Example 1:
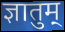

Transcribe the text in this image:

ज्ञातुम्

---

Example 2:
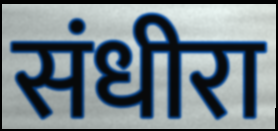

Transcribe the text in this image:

संधीरा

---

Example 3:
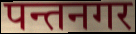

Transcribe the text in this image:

पन्तनगर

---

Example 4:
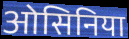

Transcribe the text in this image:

ओसिनिया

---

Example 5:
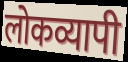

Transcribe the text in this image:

लोकव्यापी